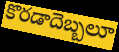
కొరడాదెబ్బలూ